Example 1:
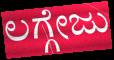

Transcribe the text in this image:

ಲಗ್ಗೇಜು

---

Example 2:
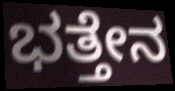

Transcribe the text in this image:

ಭತ್ತೇನ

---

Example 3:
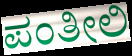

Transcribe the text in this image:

ಪಂತೀಲಿ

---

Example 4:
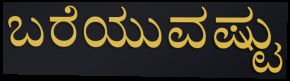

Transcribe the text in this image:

ಬರೆಯುವಷ್ಟು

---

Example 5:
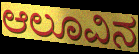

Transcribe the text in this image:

ಆಲೂವಿನ